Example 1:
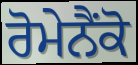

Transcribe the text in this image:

ਰੋਮੇਨੈਂਕੋ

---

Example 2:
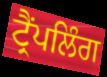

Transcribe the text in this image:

ਟ੍ਰੈਂਪਲਿੰਗ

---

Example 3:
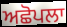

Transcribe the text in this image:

ਅਛੋਪਲਾ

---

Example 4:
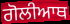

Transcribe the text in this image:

ਗੋਲੀਆਥ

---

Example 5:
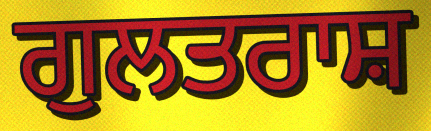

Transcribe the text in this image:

ਗੁਲਤਰਾਸ਼